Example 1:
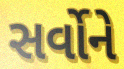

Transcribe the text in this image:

સર્વોને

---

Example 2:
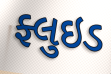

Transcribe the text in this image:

ફ્લુઇડ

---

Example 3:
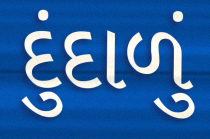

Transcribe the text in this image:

દુંદાળું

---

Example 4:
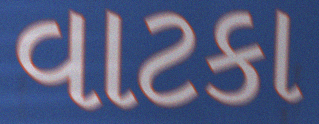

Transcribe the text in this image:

વાટકા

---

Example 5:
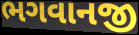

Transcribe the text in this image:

ભગવાનજી